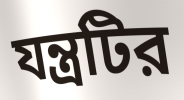
যন্ত্রটির